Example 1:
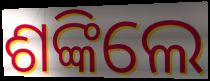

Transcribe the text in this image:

ଶଙ୍କିଲେ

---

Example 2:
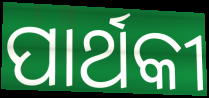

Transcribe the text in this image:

ପାର୍ଥକୀ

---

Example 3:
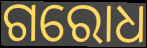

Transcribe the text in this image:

ଗରୋଧ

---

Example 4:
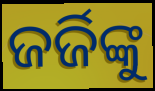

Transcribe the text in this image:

ଜର୍ଜିଙ୍କୁ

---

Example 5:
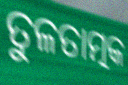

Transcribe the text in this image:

ତୁଳତାତ୍ମକ